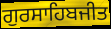
ਗੁਰਸਾਹਿਬਜੀਤ